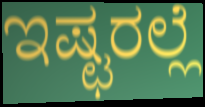
ಇಷ್ಟರಲ್ಲೆ